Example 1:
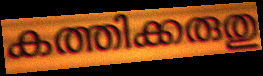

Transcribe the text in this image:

കത്തിക്കരുതു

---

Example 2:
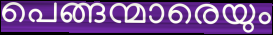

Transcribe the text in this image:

പെങ്ങന്മാരെയും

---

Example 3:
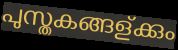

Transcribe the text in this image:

പുസ്തകങ്ങള്ക്കും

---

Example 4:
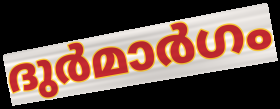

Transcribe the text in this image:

ദുർമാർഗം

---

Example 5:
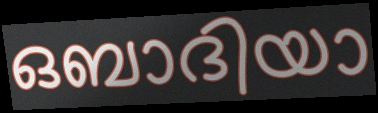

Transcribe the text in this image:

ഒബാദിയാ